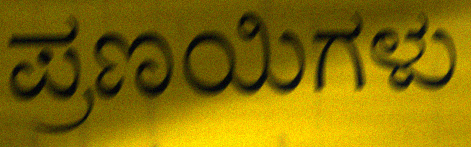
ಪ್ರಣಯಿಗಳು